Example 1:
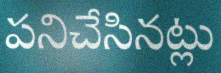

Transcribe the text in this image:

పనిచేసినట్లు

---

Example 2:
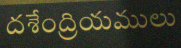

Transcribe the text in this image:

దశేంద్రియములు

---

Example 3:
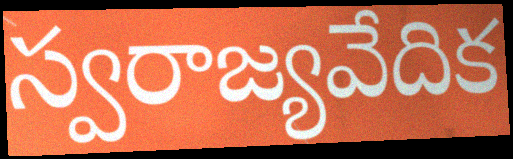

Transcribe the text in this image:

స్వరాజ్యవేదిక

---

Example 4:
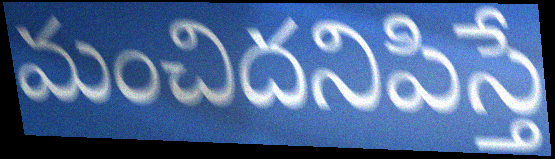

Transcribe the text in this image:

మంచిదనిపిస్తే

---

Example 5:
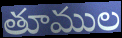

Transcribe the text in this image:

తూముల